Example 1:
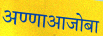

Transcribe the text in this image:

अण्णाआजोबा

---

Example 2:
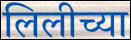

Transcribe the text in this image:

लिलीच्या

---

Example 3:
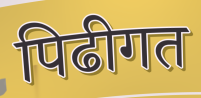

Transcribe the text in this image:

पिढीगत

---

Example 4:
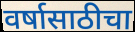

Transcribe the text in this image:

वर्षासाठीचा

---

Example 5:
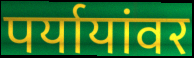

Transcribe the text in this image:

पर्यायांवर